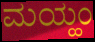
ಮಯ್ಹಂ